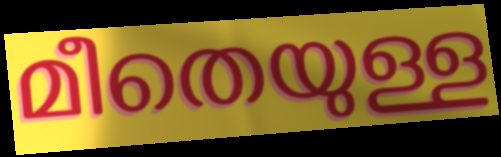
മീതെയുള്ള